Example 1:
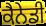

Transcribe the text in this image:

ਕੈਨੇਡੀ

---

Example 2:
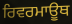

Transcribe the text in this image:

ਰਿਵਰਮਾਊਥ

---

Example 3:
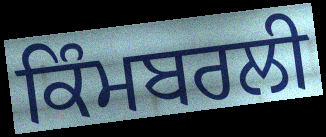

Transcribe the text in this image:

ਕਿੰਮਬਰਲੀ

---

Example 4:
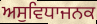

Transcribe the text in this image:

ਅਸੁਵਿਧਾਜਨਕ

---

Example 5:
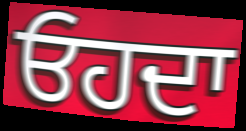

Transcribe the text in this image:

ਓਹਦਾ